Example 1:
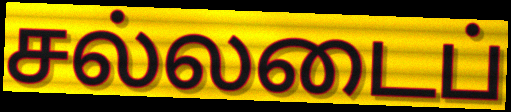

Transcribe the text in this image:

சல்லடைப்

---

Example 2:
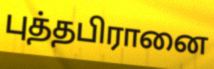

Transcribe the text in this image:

புத்தபிரானை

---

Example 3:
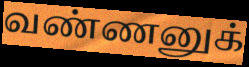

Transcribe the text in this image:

வண்ணனுக்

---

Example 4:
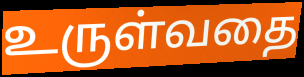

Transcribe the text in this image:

உருள்வதை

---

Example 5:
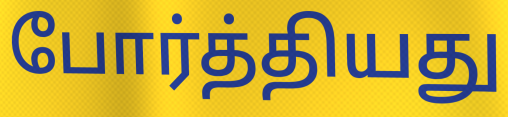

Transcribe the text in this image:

போர்த்தியது